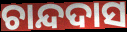
ଚାନ୍ଦଦାସ